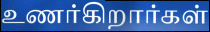
உணர்கிறார்கள்